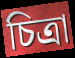
চিত্রা